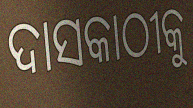
ଦାସକାଠୀକୁ